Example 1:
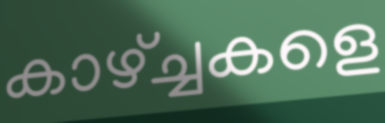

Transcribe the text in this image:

കാഴ്ച്ചകളെ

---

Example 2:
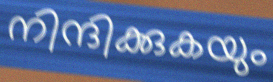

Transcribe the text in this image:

നിന്ദിക്കുകയും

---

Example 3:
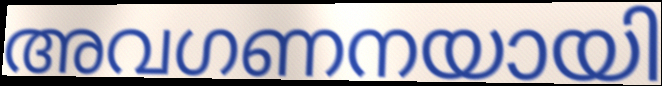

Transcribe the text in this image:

അവഗണനയായി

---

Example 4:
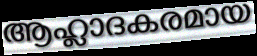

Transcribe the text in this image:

ആഹ്ലാദകരമായ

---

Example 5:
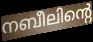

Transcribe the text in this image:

നബീലിന്റെ